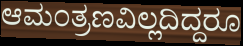
ಆಮಂತ್ರಣವಿಲ್ಲದಿದ್ದರೂ